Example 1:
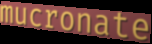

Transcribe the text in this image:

mucronate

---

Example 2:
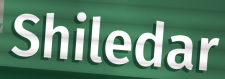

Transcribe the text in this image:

Shiledar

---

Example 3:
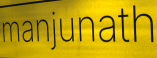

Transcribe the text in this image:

manjunath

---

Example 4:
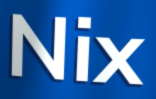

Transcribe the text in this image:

Nix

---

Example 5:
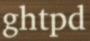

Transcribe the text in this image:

ghtpd